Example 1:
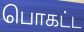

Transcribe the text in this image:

பொகட்ட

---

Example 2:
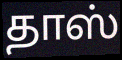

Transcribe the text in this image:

தாஸ்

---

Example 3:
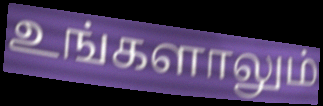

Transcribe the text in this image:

உங்களாலும்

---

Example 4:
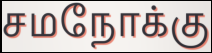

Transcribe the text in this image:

சமநோக்கு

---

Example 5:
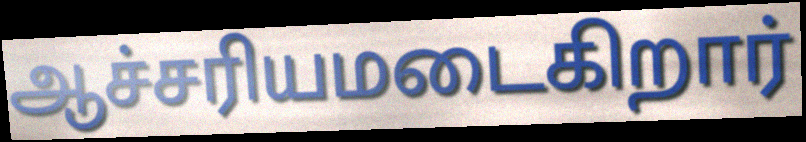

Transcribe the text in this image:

ஆச்சரியமடைகிறார்